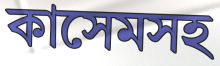
কাসেমসহ